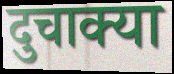
दुचाक्या